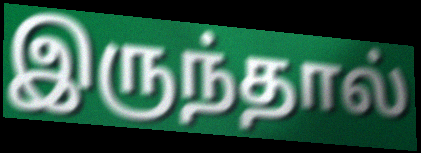
இருந்தால்